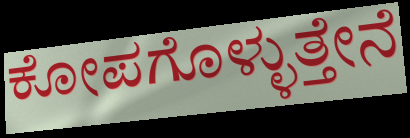
ಕೋಪಗೊಳ್ಳುತ್ತೇನೆ